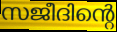
സജീദിന്റെ